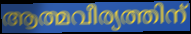
ആത്മവീര്യത്തിന്